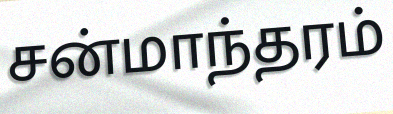
சன்மாந்தரம்